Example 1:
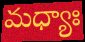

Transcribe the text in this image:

మధ్యాః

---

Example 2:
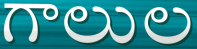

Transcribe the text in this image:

గాలుల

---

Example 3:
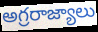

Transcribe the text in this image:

అగ్రరాజ్యాలు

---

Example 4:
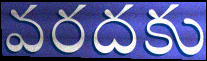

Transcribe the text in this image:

వరదకు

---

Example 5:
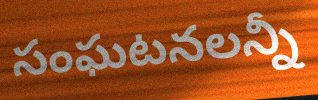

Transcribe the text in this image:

సంఘటనలన్నీ